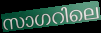
സാഗറിലെ